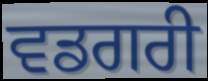
ਵਡਗਰੀ